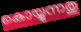
കൊയ്യുന്നതു